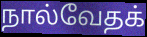
நால்வேதக்